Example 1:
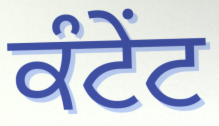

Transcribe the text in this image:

ਕੰਟੇਂਟ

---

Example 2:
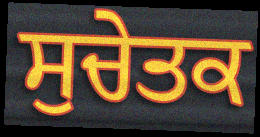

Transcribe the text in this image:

ਸੁਚੇਤਕ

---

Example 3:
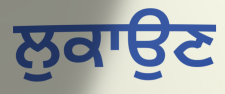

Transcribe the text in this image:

ਲੁਕਾਉਣ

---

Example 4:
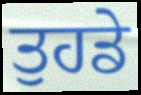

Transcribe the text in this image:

ਤੁਹਡੇ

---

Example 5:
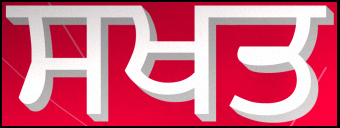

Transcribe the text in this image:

ਸਖਤ